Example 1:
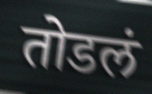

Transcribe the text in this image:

तोडलं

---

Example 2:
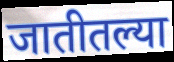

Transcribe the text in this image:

जातीतल्या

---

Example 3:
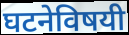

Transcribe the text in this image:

घटनेविषयी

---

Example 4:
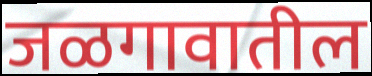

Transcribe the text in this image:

जळगावातील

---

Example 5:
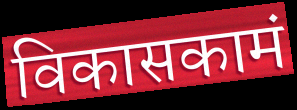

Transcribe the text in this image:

विकासकामं